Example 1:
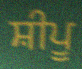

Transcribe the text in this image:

ਸ਼ੀਪੂ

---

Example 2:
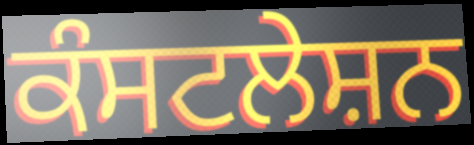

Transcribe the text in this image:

ਕੰਸਟਲੇਸ਼ਨ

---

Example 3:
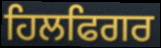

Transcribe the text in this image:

ਹਿਲਫਿਗਰ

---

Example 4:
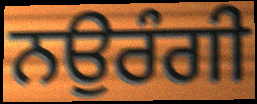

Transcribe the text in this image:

ਨਉਰੰਗੀ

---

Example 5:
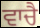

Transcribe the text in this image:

ਵਾਚੈ